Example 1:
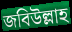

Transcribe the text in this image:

জবিউল্লাহ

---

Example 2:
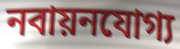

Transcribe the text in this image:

নবায়নযোগ্য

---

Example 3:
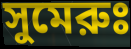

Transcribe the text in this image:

সুমেরুঃ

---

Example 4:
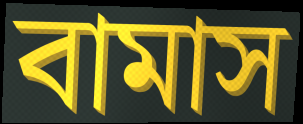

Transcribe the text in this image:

বামাস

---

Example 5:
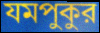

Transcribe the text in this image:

যমপুকুর